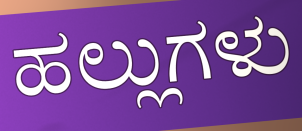
ಹಲ್ಲುಗಳು